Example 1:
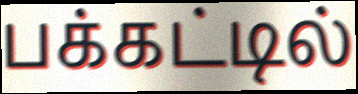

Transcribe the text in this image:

பக்கட்டில்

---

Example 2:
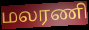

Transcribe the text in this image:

மலரணி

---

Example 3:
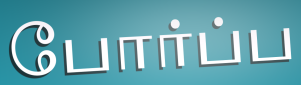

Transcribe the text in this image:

போர்ப்ப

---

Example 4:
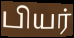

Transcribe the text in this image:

பியர்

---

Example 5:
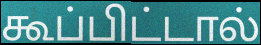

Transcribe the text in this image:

கூப்பிட்டால்